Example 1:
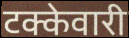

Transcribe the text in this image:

टक्केवारी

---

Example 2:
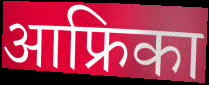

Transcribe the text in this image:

आफ्रिका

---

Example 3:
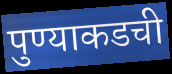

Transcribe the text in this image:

पुण्याकडची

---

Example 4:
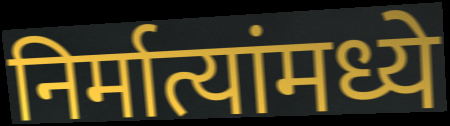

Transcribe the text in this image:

निर्मात्यांमध्ये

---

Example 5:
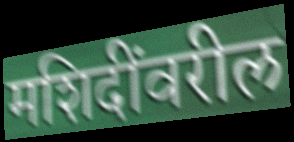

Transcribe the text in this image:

मशिदींवरील